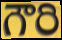
గౌరి